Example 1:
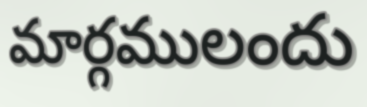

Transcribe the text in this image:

మార్గములందు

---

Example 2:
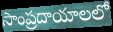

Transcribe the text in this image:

సాంప్రదాయాలలో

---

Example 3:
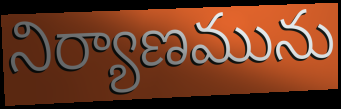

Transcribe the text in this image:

నిర్యాణమును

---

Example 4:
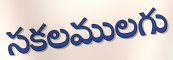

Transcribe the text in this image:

సకలములగు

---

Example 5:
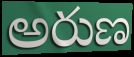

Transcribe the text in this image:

అరుణ